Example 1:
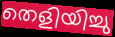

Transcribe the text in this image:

തെളിയിച്ചു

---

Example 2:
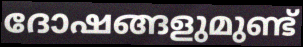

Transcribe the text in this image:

ദോഷങ്ങളുമുണ്ട്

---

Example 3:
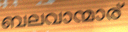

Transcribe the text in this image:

ബലവാന്മാര്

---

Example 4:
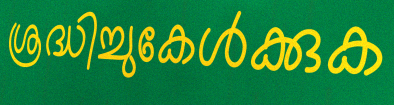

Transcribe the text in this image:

ശ്രദ്ധിച്ചുകേൾക്കുക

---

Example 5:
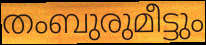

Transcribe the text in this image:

തംബുരുമീട്ടും